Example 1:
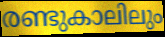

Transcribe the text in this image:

രണ്ടുകാലിലും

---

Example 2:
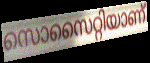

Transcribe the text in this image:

സൊസൈറ്റിയാണ്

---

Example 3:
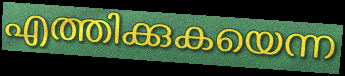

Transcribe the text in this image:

എത്തിക്കുകയെന്ന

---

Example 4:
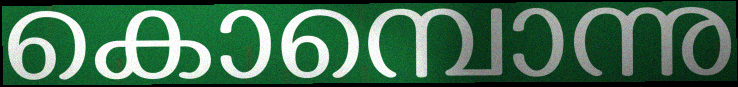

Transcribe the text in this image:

കൊമ്പൊന്നു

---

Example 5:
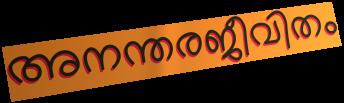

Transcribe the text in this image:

അനന്തരജീവിതം